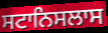
ਸਟਾਨਿਸਲਾਸ